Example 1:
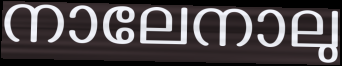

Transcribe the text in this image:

നാലേനാലു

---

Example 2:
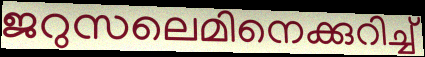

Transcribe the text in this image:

ജറുസലെമിനെക്കുറിച്ച്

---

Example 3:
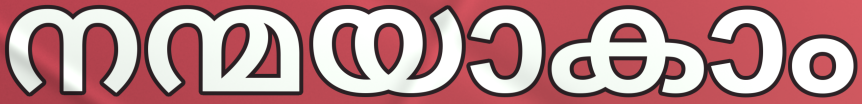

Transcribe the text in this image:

നന്മയാകാം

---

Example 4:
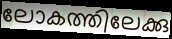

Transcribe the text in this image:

ലോകത്തിലേക്കു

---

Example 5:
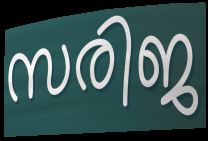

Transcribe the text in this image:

സരിജ